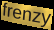
frenzy